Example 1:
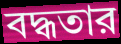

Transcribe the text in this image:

বদ্ধতার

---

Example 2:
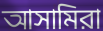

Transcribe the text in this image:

আসামিরা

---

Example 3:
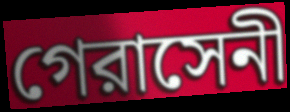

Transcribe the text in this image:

গেরাসেনী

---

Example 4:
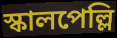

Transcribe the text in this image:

স্কালপেল্লি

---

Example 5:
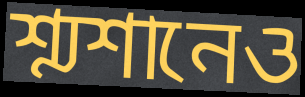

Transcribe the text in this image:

শ্মশানেও